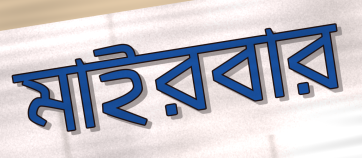
মাইরবার